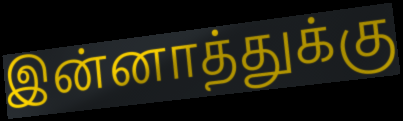
இன்னாத்துக்கு